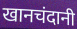
खानचंदानी